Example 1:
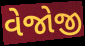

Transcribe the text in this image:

વેજોજી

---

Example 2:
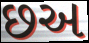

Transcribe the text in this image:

છઅ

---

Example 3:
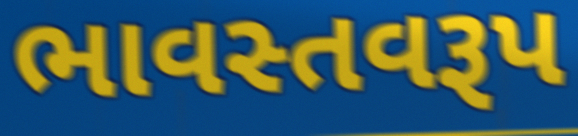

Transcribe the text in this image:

ભાવસ્તવરૂપ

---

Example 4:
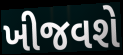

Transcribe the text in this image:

ખીજવશે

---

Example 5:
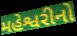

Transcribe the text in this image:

મહેશ્વરીનો